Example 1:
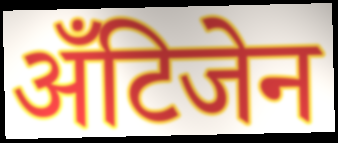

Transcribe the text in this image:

अँटिजेन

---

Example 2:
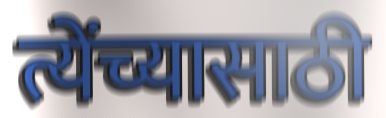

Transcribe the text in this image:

त्येंच्यासाठी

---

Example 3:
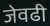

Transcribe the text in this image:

जेवढी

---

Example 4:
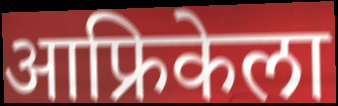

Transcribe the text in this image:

आफ्रिकेला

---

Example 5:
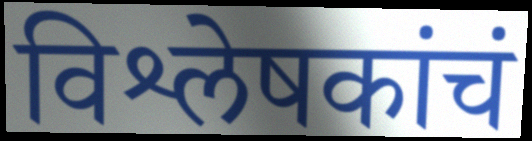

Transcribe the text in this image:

विश्लेषकांचं